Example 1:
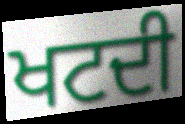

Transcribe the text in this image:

ਖਟਦੀ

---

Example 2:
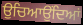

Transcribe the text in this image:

ਉਚਿਆਉਂਦਿਆਂ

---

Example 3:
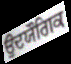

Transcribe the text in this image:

ਉਦਯੌਗਿਕ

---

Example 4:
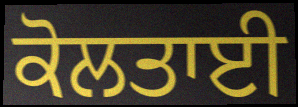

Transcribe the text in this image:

ਕੋਲਤਾਈ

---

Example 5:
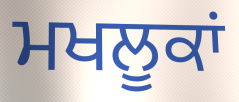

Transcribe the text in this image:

ਮਖਲੂਕਾਂ